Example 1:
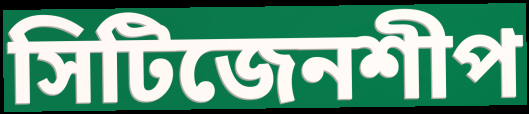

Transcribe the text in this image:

সিটিজেনশীপ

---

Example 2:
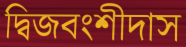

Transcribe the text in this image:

দ্বিজবংশীদাস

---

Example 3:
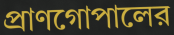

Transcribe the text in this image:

প্রাণগোপালের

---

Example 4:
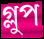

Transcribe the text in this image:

গ্লুপ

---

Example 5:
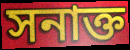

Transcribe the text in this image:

সনাক্ত